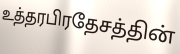
உத்தரபிரதேசத்தின்